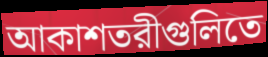
আকাশতরীগুলিতে